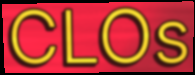
CLOs